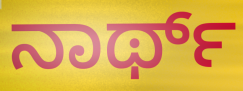
ನಾರ್ಥ್